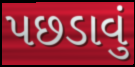
પછડાવું